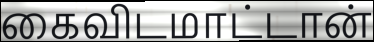
கைவிடமாட்டான்